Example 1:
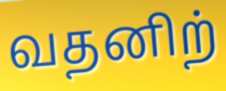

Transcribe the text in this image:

வதனிற்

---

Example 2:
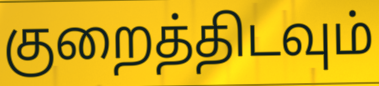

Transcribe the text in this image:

குறைத்திடவும்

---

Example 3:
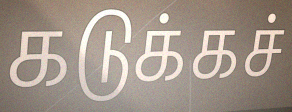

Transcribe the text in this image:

கடுக்கச்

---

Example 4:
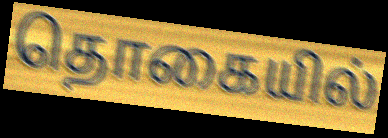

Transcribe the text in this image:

தொகையில்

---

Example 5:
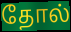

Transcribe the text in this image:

தோல்